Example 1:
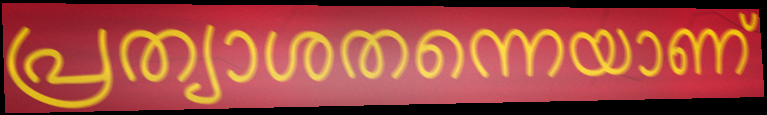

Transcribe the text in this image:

പ്രത്യാശതന്നെയാണ്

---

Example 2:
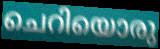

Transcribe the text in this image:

ചെറിയൊരു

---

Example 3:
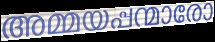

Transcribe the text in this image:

അമ്മയപ്പന്മാരോ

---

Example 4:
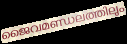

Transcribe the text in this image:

ജൈവമണ്ഡലത്തിലും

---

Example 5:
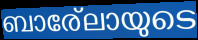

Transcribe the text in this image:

ബാര്ലോയുടെ